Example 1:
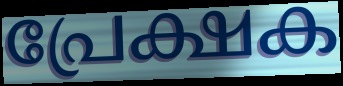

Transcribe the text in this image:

പ്രേക്ഷക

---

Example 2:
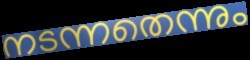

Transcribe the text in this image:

നടന്നതെന്നും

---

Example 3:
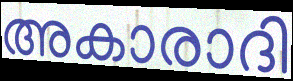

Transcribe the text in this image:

അകാരാദി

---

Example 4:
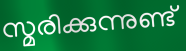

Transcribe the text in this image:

സ്മരിക്കുന്നുണ്ട്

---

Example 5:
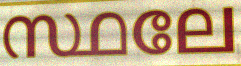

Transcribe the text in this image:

സ്ഥലേ